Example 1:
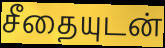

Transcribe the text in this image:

சீதையுடன்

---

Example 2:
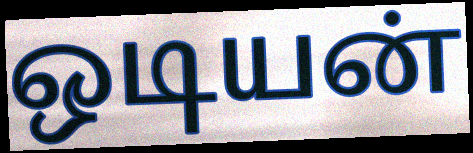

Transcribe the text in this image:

ஒடியன்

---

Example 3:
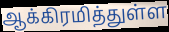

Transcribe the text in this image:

ஆக்கிரமித்துள்ள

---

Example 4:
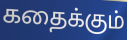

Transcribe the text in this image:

கதைக்கும்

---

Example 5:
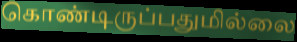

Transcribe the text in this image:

கொண்டிருப்பதுமில்லை